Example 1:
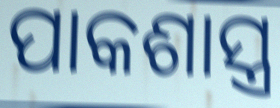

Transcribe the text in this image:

ପାକଶାସ୍ତ୍ର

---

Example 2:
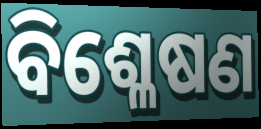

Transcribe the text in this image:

ବିଶ୍ଳେଷଣ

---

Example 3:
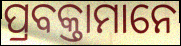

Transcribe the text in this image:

ପ୍ରବକ୍ତାମାନେ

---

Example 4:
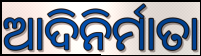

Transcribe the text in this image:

ଆଦିନିର୍ମାତା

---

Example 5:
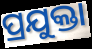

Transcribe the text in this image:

ପ୍ରଯୁକ୍ତା